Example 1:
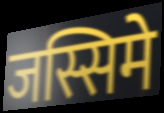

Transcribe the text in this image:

जस्सिमे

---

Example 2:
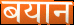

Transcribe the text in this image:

बयान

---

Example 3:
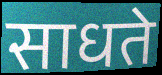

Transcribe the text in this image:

साधते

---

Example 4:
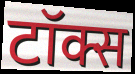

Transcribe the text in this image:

टॉक्स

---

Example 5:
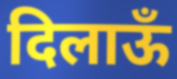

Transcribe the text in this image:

दिलाऊँ